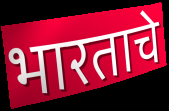
भारताचे